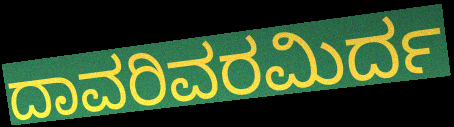
ದಾವರಿವರಮಿರ್ದ